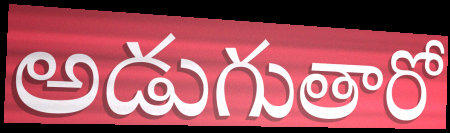
అడుగుతారో